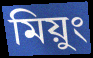
মিয়ুং